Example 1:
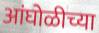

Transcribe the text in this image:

आंघोळीच्या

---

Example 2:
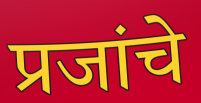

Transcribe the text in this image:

प्रजांचे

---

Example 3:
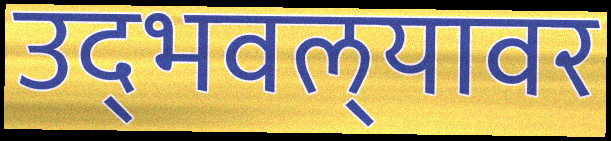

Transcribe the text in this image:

उद्भवल्यावर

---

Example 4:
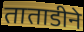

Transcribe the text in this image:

ताताडीने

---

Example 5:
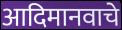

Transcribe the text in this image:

आदिमानवाचे